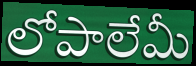
లోపాలేమీ